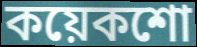
কয়েকশো